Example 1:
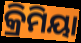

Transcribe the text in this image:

କ୍ରିମିୟା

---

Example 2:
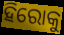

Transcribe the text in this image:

ହିରୋକୁ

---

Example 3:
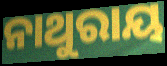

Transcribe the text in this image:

ନାଥୁରାୟ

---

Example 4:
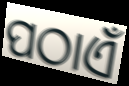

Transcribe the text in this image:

ପଠାଏଁ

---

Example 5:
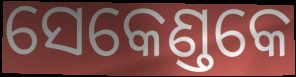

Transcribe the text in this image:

ସେକେଣ୍ଡକେ